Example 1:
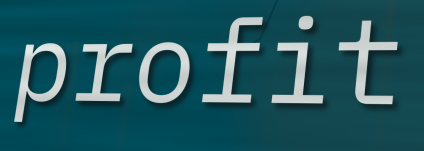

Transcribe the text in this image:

profit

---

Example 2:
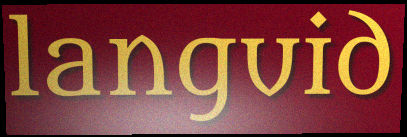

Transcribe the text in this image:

languid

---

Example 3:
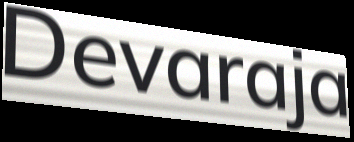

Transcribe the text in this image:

Devaraja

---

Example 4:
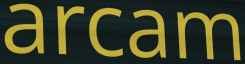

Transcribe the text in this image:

arcam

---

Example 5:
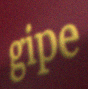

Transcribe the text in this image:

gipe